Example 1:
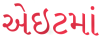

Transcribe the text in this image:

એઇટમાં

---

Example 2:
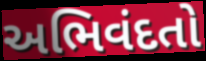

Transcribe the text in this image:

અભિવંદતો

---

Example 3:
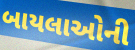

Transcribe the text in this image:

બાયલાઓની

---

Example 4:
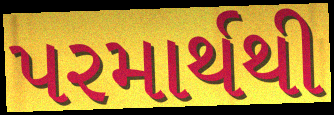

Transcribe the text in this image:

પરમાર્થથી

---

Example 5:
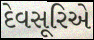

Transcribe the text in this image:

દેવસૂરિએ